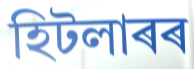
হিটলাৰৰ